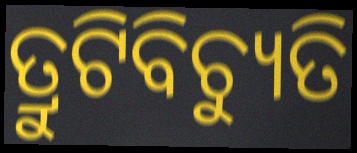
ତ୍ରୁଟିବିଚ୍ୟୁତି